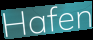
Hafen